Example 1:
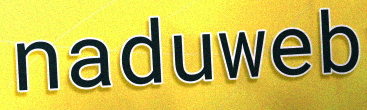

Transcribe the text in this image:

naduweb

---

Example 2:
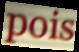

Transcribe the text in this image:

pois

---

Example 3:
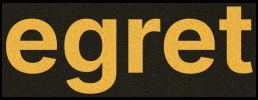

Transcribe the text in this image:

egret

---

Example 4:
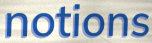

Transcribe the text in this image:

notions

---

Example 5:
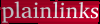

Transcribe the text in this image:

plainlinks